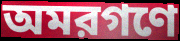
অমরগণে